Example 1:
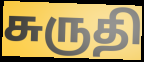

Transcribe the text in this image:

சுருதி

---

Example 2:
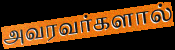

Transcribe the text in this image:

அவரவர்களால்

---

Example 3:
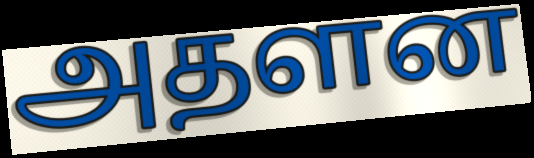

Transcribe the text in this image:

அதளன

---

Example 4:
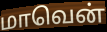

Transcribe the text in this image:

மாவென்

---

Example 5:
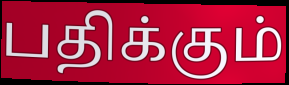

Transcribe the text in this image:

பதிக்கும்